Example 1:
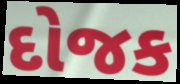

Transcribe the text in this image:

દોજક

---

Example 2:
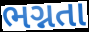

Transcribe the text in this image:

ભગ્નતા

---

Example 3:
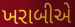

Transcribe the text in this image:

ખરાબીએ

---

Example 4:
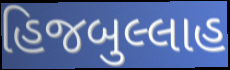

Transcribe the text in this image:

હિજબુલ્લાહ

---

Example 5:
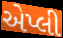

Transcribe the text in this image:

એપ્લી